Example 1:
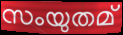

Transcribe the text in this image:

സംയുതമ്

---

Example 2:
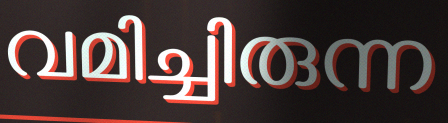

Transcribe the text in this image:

വമിച്ചിരുന്ന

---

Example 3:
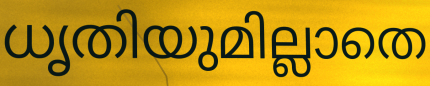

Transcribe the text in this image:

ധൃതിയുമില്ലാതെ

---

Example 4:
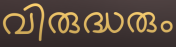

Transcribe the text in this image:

വിരുദ്ധരും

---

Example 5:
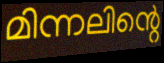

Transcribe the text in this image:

മിന്നലിന്റെ